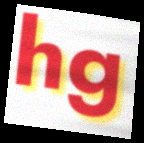
hg